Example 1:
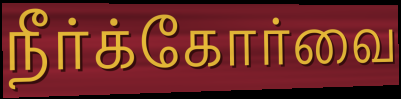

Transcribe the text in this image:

நீர்க்கோர்வை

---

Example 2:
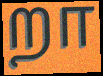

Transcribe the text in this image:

றா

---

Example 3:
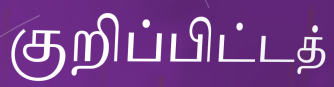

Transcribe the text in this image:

குறிப்பிட்டத்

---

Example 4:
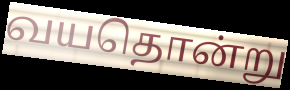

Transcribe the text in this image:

வயதொன்று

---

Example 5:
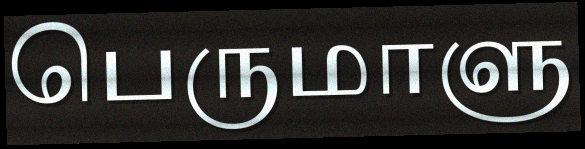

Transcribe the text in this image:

பெருமாளு